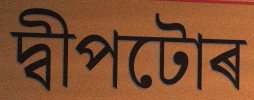
দ্বীপটোৰ